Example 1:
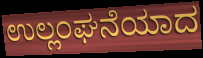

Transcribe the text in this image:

ಉಲ್ಲಂಘನೆಯಾದ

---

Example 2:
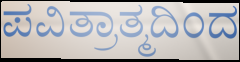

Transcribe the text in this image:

ಪವಿತ್ರಾತ್ಮದಿಂದ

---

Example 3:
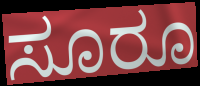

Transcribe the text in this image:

ಸೂರೂ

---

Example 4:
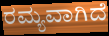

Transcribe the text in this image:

ರಮ್ಯವಾಗಿದೆ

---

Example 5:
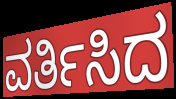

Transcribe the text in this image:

ವರ್ತಿಸಿದ